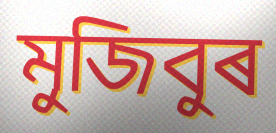
মুজিবুৰ